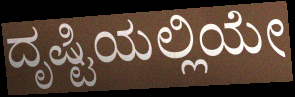
ದೃಷ್ಟಿಯಲ್ಲಿಯೇ